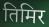
तिमिर